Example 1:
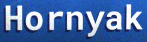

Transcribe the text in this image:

Hornyak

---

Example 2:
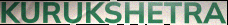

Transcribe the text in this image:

KURUKSHETRA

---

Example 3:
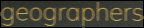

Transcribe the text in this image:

geographers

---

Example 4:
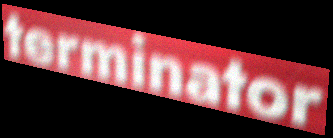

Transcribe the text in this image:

terminator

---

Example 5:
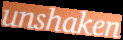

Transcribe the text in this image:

unshaken